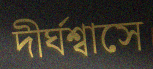
দীর্ঘশ্বাসে